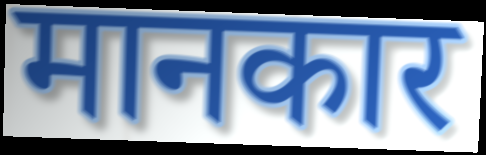
मानकार